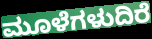
ಮೂಳೆಗಳುದಿರೆ